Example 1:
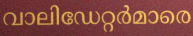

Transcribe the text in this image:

വാലിഡേറ്റർമാരെ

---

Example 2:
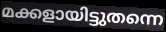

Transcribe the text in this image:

മക്കളായിട്ടുതന്നെ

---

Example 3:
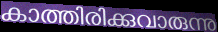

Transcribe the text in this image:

കാത്തിരിക്കുവാരുന്നു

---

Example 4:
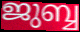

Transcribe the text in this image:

ജുബ്ബ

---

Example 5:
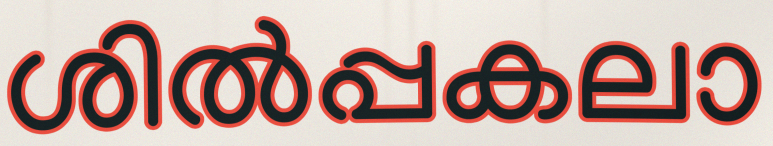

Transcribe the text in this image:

ശിൽപ്പകലാ